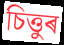
চিত্তুৰ